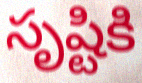
సృష్టికి